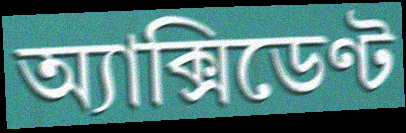
অ্যাক্সিডেণ্ট